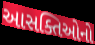
આસક્તિઓનો